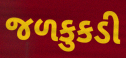
જળકુકડી